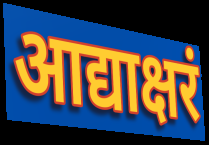
आद्याक्षरं